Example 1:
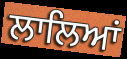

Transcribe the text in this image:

ਲਾਲਿਆਂ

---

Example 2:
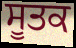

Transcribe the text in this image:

ਸੂਤਕ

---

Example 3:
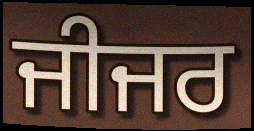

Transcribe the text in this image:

ਜੀਜਰ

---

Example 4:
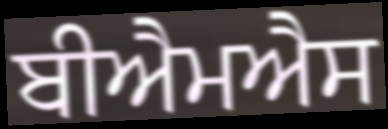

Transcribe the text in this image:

ਬੀਐਮਐਸ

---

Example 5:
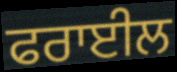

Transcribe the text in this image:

ਫਰਾਈਲ